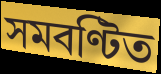
সমবণ্টিত